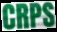
CRPS